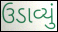
ઉડાવ્યું